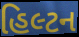
હિલ્ટન